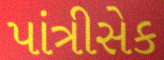
પાંત્રીસેક